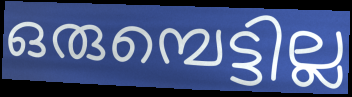
ഒരുമ്പെട്ടില്ല